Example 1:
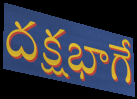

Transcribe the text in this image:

దక్షభాగే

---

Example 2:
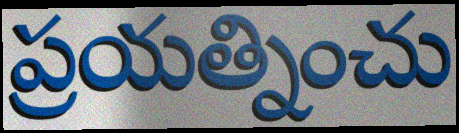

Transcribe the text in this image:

ప్రయత్నించు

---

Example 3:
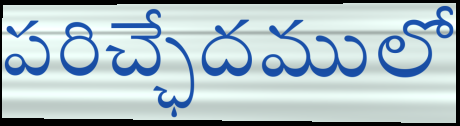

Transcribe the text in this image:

పరిచ్ఛేదములో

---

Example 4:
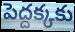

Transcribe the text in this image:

పెద్దక్కకు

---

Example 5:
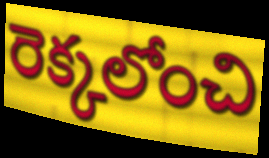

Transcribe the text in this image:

రెక్కలోంచి